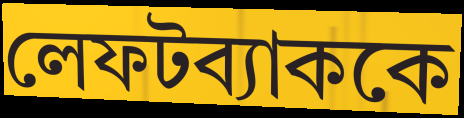
লেফটব্যাককে